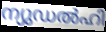
ന്യുഡൽഹി